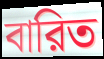
বারিত